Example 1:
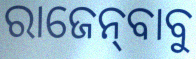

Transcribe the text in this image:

ରାଜେନ୍‌ବାବୁ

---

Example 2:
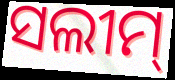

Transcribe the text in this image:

ସଲୀମ୍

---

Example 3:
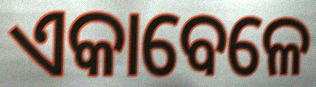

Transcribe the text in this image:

ଏକାବେଳେ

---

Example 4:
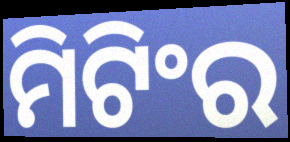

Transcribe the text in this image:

ମିଟିଂର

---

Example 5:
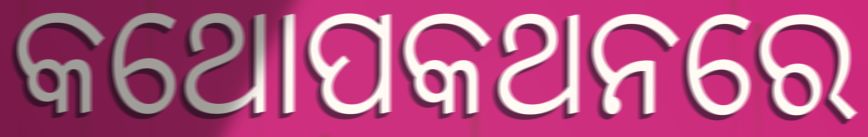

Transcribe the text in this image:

କଥୋପକଥନରେ